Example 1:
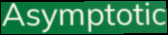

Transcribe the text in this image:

Asymptotic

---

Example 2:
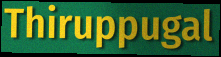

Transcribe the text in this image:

Thiruppugal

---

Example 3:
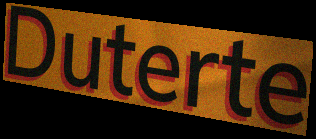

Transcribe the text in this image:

Duterte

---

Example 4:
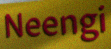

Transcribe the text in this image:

Neengi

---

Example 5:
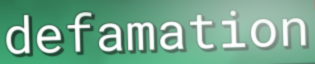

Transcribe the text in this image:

defamation